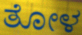
ತೋಳ